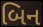
બિન